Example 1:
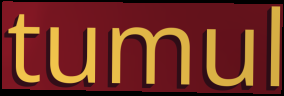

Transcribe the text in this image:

tumul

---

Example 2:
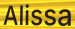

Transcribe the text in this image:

Alissa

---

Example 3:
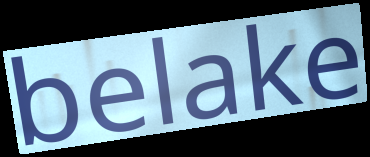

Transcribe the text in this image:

belake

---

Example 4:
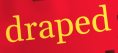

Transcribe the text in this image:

draped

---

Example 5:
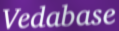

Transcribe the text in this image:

Vedabase